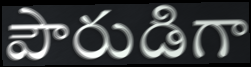
పౌరుడిగా